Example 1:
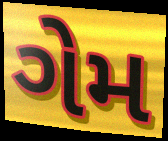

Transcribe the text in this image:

ગેમ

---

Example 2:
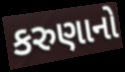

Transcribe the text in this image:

કરુણાનો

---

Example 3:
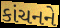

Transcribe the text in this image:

કાંચનને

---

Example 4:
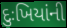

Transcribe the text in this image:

દુઃખિયાંની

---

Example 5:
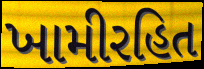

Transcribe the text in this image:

ખામીરહિત